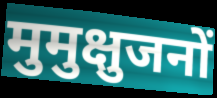
मुमुक्षुजनों